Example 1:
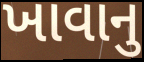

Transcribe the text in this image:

ખાવાનુ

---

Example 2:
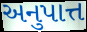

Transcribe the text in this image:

અનુપાત્ત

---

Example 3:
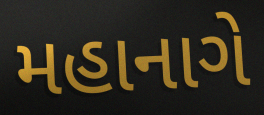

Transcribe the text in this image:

મહાનાગે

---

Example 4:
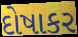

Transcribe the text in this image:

દોષાકર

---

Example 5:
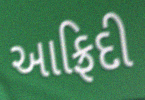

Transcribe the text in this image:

આફ્રિદી